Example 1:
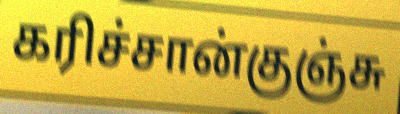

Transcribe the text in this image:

கரிச்சான்குஞ்சு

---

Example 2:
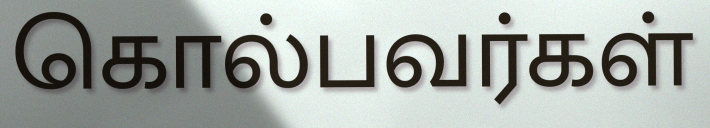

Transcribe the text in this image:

கொல்பவர்கள்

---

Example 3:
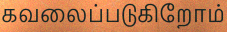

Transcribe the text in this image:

கவலைப்படுகிறோம்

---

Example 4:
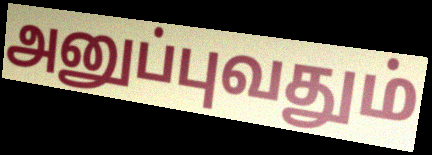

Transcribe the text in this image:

அனுப்புவதும்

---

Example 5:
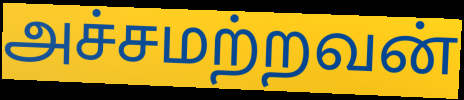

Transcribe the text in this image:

அச்சமற்றவன்